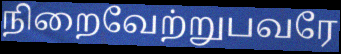
நிறைவேற்றுபவரே